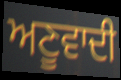
ਅਣੂਵਾਦੀ